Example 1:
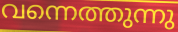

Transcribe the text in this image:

വന്നെത്തുന്നു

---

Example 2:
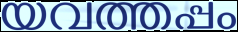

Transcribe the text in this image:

യവത്തപ്പം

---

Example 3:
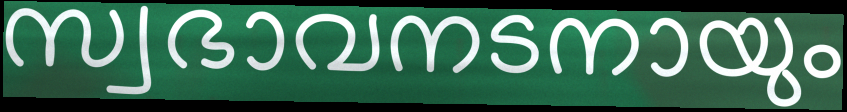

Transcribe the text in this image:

സ്വഭാവനടനായും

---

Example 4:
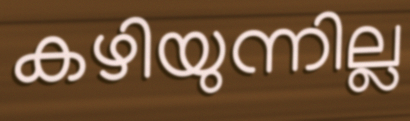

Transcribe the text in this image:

കഴിയുന്നില്ല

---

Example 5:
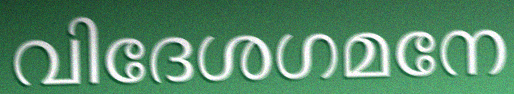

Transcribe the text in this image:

വിദേശഗമനേ